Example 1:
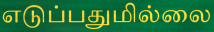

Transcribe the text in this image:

எடுப்பதுமில்லை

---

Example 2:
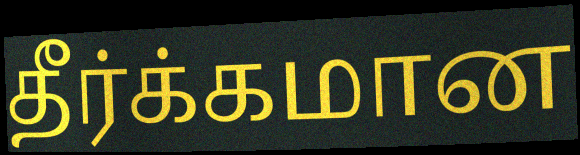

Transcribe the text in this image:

தீர்க்கமான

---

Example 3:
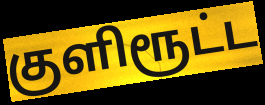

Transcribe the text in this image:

குளிரூட்ட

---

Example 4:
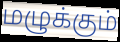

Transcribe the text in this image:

மழுக்கும்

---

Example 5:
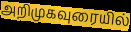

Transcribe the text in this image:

அறிமுகவுரையில்